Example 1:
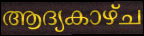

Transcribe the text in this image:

ആദ്യകാഴ്ച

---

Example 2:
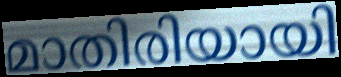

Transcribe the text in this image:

മാതിരിയായി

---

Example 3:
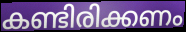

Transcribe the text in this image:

കണ്ടിരിക്കണം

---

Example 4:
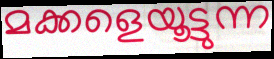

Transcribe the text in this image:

മക്കളെയൂട്ടുന്ന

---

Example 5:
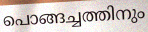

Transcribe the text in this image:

പൊങ്ങച്ചത്തിനും